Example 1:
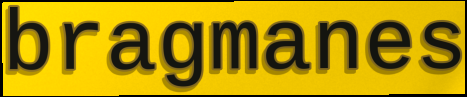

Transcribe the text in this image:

bragmanes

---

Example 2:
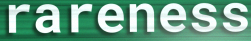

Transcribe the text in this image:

rareness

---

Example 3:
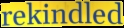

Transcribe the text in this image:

rekindled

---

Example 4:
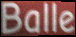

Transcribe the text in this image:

Balle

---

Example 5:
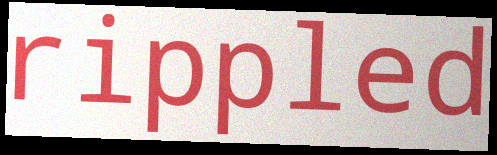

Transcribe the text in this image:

rippled